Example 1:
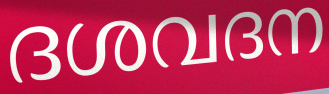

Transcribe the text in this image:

ദശവദന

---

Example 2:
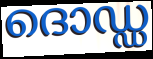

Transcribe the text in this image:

ദൊഡ്ഡ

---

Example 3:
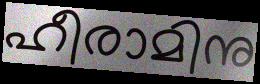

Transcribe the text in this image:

ഹീരാമിനു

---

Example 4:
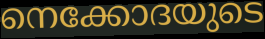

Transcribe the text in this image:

നെക്കോദയുടെ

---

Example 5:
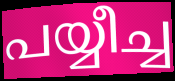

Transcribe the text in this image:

പയ്യീച്ച